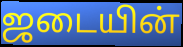
ஜடையின்